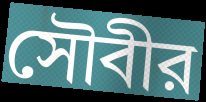
সৌবীর